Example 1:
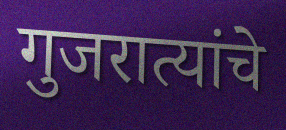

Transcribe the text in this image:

गुजरात्यांचे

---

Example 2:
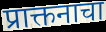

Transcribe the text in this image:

प्राक्तनाचा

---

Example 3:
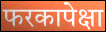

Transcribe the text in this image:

फरकापेक्षा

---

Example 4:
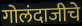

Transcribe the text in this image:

गोलंदाजीचे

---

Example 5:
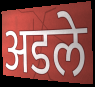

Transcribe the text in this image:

अडले